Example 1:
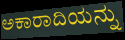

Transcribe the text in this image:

ಅಕಾರಾದಿಯನ್ನು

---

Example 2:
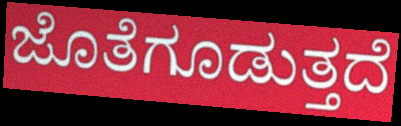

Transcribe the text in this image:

ಜೊತೆಗೂಡುತ್ತದೆ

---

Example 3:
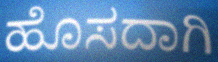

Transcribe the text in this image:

ಹೊಸದಾಗಿ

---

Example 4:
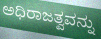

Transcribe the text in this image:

ಅಧಿರಾಜತ್ವವನ್ನು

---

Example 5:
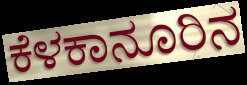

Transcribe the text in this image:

ಕೆಳಕಾನೂರಿನ